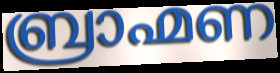
ബ്രാഹ്മണ